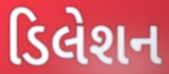
ડિલેશન